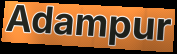
Adampur